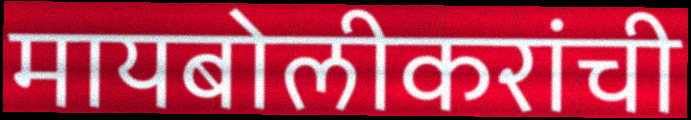
मायबोलीकरांची